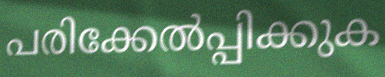
പരിക്കേൽപ്പിക്കുക